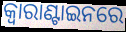
କ୍ବାରାଣ୍ଟାଇନରେ